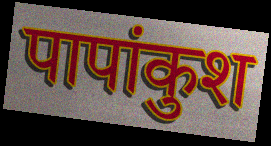
पापांकुश